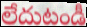
లేదుటండీ